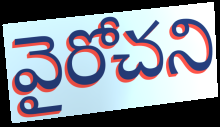
వైరోచని